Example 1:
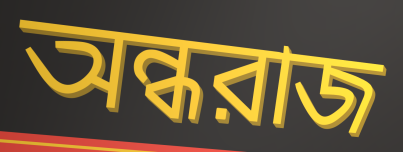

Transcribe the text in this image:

অন্ধরাজ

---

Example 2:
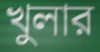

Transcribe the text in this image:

খুলার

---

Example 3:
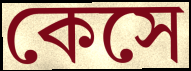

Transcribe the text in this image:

কেসে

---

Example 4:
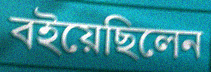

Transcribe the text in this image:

বইয়েছিলেন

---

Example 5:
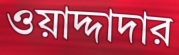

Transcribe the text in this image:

ওয়াদ্দাদার